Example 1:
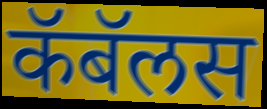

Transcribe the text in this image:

कॅबॅलस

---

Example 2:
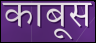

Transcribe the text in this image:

काबूस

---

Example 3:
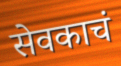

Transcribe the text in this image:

सेवकाचं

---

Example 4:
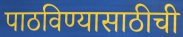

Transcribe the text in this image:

पाठविण्यासाठीची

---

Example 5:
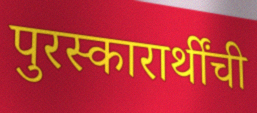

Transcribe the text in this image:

पुरस्कारार्थींची